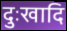
दुःखादि